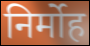
निर्मोह